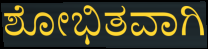
ಶೋಭಿತವಾಗಿ